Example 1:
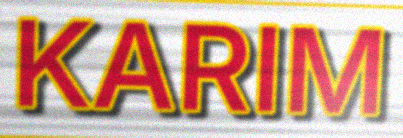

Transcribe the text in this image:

KARIM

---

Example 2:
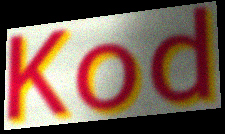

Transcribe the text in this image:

Kod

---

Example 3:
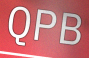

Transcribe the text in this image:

QPB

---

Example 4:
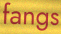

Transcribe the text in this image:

fangs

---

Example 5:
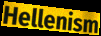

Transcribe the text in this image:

Hellenism